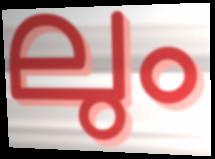
ലും